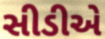
સીડીએ